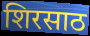
शिरसाठ